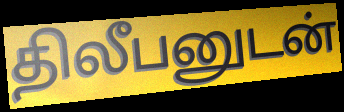
திலீபனுடன்